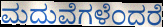
ಮದುವೆಗಳೆಂದರೆ